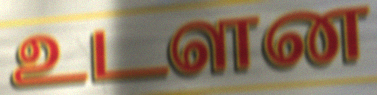
உடளன